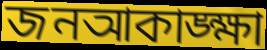
জনআকাঙ্ক্ষা